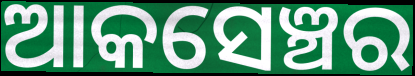
ଆକସେଞ୍ଚର